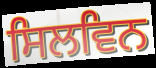
ਸਿਲਵਿਨ